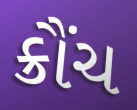
ક્રૌંચ